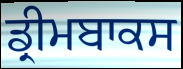
ਡ੍ਰੀਮਬਾਕਸ